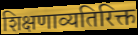
शिक्षणाव्यतिरिक्त